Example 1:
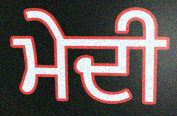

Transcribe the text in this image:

ਮੇਦੀ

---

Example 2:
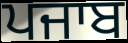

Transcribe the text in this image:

ਪਜਾਬ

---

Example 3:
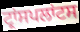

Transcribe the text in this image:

ਟ੍ਰਾਂਸਪਲਾਂਟਸ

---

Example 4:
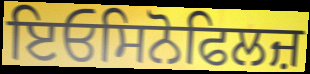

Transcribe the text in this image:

ਇਓਸਿਨੋਫਿਲਜ਼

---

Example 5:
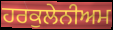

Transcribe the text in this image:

ਹਰਕੁਲੇਨੀਅਮ